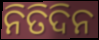
ନିତିଦିନ